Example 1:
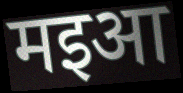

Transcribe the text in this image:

मइआ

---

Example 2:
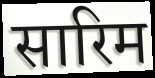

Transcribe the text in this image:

सारिम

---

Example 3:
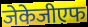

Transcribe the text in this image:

जेकेजीएफ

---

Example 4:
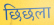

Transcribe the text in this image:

छिछला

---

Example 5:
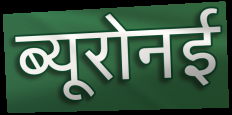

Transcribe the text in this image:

ब्यूरोनई